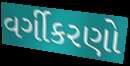
વર્ગીકરણો